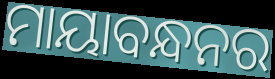
ମାୟାବନ୍ଧନର